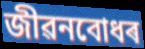
জীৱনবোধৰ